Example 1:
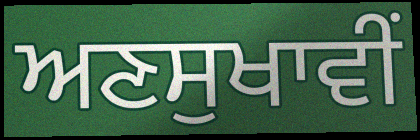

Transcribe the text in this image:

ਅਣਸੁਖਾਵੀਂ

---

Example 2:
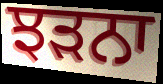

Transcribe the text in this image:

ਝੜਨਾ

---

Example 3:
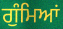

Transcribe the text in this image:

ਗੁੰਮਿਆਂ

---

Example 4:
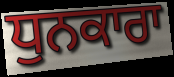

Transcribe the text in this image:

ਧੁਨਕਾਰਾ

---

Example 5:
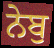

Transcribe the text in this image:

ਨੇਬੁ